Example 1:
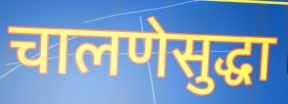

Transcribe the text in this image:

चालणेसुद्धा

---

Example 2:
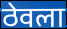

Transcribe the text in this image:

ठेवला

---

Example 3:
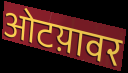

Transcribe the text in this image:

ओटय़ावर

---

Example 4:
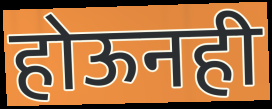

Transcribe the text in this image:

होऊनही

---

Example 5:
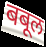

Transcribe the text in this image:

बबूल